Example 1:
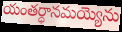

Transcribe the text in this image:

యంతర్ధానమయ్యెను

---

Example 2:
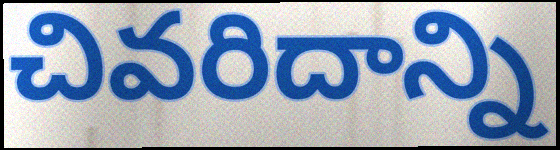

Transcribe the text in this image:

చివరిదాన్ని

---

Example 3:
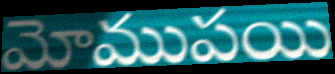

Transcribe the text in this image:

మోముపయి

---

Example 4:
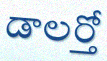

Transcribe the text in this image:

డాలర్తో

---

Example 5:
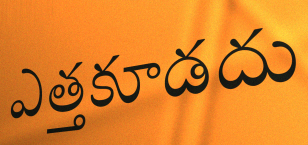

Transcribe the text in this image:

ఎత్తకూడదు